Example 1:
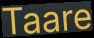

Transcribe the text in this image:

Taare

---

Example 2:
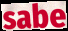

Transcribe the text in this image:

sabe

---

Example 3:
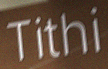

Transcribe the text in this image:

Tithi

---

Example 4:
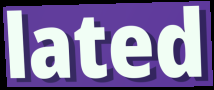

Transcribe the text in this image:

lated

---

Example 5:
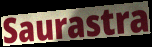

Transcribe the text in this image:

Saurastra